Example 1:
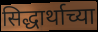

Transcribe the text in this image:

सिद्धार्थाच्या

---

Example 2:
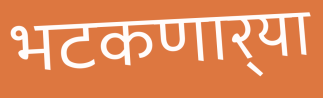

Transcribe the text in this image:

भटकणार्‍या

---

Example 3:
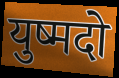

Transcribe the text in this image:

युष्मदो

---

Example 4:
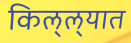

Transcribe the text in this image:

किल्ल्यात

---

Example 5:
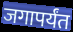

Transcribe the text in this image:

जगापर्यंत